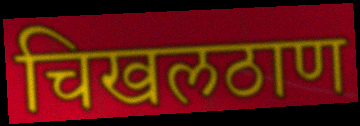
चिखलठाण